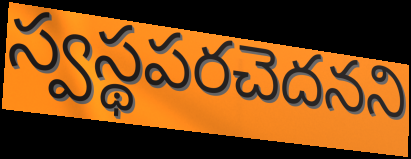
స్వస్థపరచెదనని